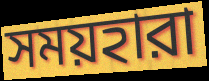
সময়হারা